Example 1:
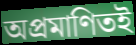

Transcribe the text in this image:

অপ্রমাণিতই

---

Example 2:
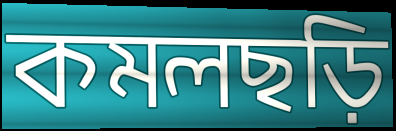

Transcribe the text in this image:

কমলছড়ি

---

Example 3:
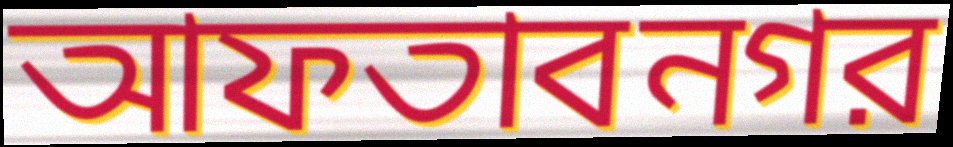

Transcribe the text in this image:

আফতাবনগর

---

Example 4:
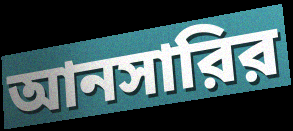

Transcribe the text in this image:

আনসারির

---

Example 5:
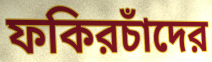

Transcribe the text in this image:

ফকিরচাঁদের